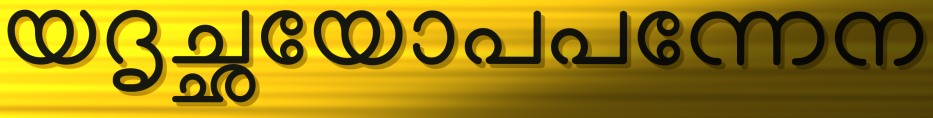
യദൃച്ഛയോപപന്നേന